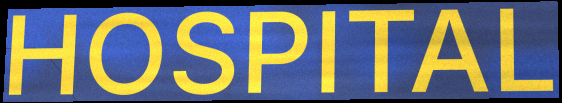
HOSPITAL